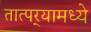
तात्पर्यामध्ये